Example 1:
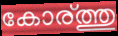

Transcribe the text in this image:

കോര്ത്തു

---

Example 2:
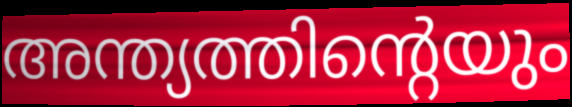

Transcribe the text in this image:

അന്ത്യത്തിന്റെയും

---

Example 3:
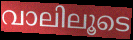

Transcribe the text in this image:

വാലിലൂടെ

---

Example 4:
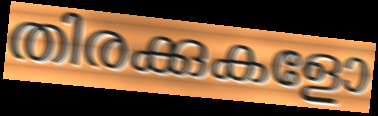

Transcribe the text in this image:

തിരക്കുകളോ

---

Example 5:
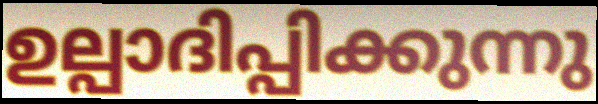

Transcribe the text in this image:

ഉല്പാദിപ്പിക്കുന്നു